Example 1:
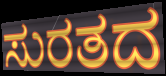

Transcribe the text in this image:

ಸುರತದ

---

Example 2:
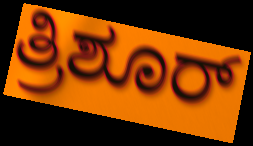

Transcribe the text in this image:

ತ್ರಿಶೂರ್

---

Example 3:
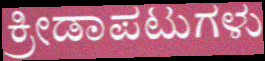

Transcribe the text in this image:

ಕ್ರೀಡಾಪಟುಗಳು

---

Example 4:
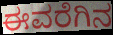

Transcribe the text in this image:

ಈವರೆಗಿನ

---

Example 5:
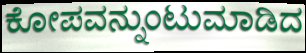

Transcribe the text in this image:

ಕೋಪವನ್ನುಂಟುಮಾಡಿದ